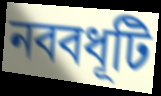
নববধূটি